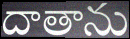
దాతాను